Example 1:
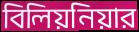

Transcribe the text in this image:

বিলিয়নিয়ার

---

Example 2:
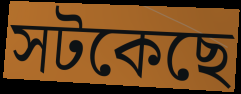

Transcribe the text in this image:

সটকেছে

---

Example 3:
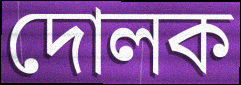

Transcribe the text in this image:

দোলক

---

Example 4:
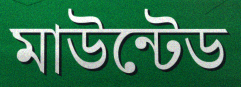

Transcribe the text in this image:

মাউন্টেড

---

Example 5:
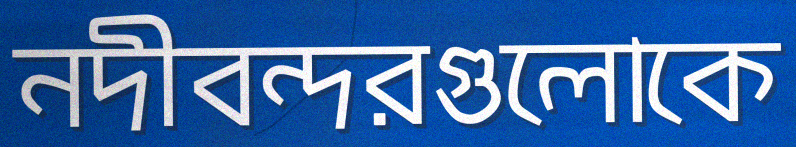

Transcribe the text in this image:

নদীবন্দরগুলোকে